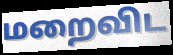
மறைவிட